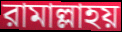
রামাল্লাহয়